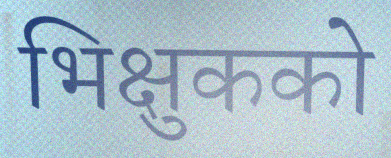
भिक्षुकको